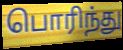
பொரிந்து